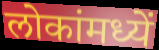
लोकांमध्यें